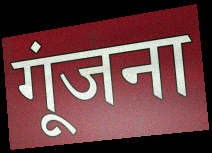
गूंजना